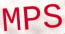
MPS